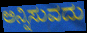
ಅನ್ನಿಸುವದು